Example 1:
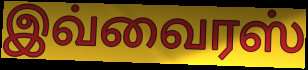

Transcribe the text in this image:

இவ்வைரஸ்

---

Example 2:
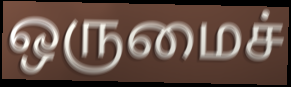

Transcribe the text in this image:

ஒருமைச்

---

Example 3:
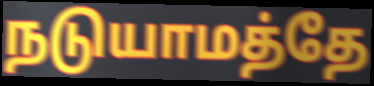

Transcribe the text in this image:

நடுயாமத்தே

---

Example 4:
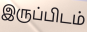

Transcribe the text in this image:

இருப்பிடம்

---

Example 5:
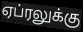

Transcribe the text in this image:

ஏப்ரலுக்கு